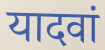
यादवां